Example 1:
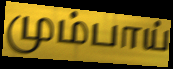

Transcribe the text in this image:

மும்பாய்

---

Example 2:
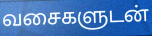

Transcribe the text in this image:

வசைகளுடன்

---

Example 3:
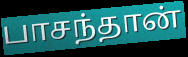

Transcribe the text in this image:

பாசந்தான்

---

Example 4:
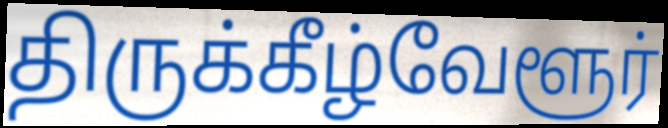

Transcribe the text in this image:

திருக்கீழ்வேளூர்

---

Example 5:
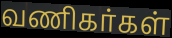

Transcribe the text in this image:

வணிகர்கள்